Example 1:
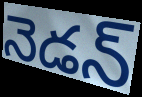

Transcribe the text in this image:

నెడన్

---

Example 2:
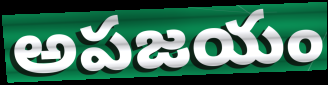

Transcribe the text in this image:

అపజయం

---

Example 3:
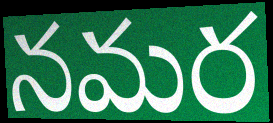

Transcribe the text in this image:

నమర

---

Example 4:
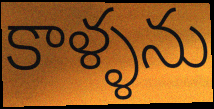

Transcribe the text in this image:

కాళ్ళను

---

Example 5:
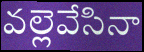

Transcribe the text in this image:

వల్లెవేసినా